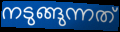
നടുങ്ങുന്നത്